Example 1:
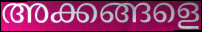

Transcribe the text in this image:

അക്കങ്ങളെ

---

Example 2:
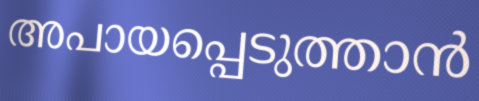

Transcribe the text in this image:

അപായപ്പെടുത്താൻ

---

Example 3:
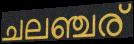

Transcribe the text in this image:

ചലഞ്ചര്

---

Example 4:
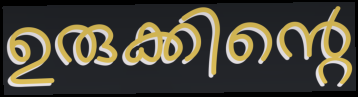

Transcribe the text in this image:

ഉരുക്കിന്റെ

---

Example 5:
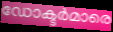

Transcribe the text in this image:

ഡോക്ടർമാരെ